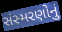
સંસ્મરણોનું